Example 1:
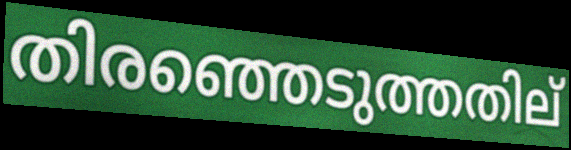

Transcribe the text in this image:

തിരഞ്ഞെടുത്തതില്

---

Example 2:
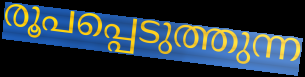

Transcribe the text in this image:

രൂപപ്പെടുത്തുന്ന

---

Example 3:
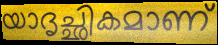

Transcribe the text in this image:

യാദൃച്ഛികമാണ്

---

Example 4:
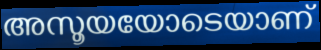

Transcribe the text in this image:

അസൂയയോടെയാണ്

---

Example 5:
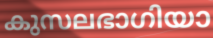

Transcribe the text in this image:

കുസലഭാഗിയാ